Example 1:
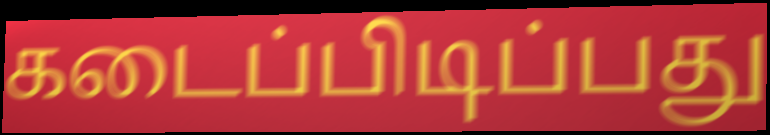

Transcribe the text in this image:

கடைப்பிடிப்பது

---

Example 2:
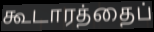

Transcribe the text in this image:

கூடாரத்தைப்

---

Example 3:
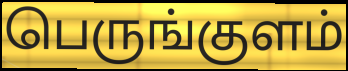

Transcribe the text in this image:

பெருங்குளம்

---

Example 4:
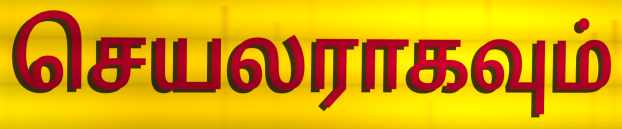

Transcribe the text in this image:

செயலராகவும்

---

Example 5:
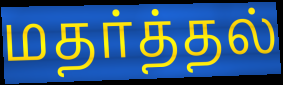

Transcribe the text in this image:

மதர்த்தல்